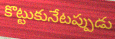
కొట్టుకునేటప్పుడు